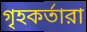
গৃহকর্তারা